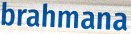
brahmana